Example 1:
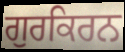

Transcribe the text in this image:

ਗੁਰਕਿਰਨ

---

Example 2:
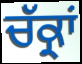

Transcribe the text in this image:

ਚੱਕ੍ਰਾਂ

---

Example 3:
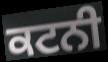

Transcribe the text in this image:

ਕਟਨੀ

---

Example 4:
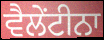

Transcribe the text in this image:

ਵੈਲੇਂਟੀਨਾ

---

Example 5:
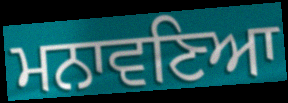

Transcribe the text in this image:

ਮਨਾਵਣਿਆ